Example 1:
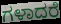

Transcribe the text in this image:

ಗಳಾದರೆ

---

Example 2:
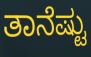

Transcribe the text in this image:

ತಾನೆಷ್ಟು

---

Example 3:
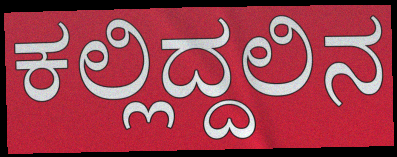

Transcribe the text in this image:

ಕಲ್ಲಿದ್ದಲಿನ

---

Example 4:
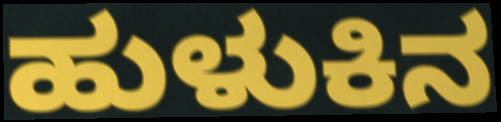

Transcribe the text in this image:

ಹುಳುಕಿನ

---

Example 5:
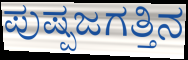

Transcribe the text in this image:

ಪುಷ್ಪಜಗತ್ತಿನ